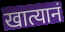
खात्यानं